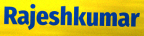
Rajeshkumar